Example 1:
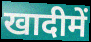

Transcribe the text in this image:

खादीमें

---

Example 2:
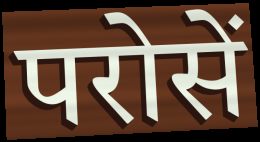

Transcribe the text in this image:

परोसें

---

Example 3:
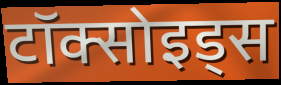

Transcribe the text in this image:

टॉक्सोइड्स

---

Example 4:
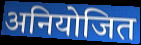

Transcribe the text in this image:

अनियोजित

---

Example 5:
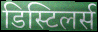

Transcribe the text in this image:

डिस्टिलर्स